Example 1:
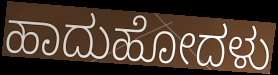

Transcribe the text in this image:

ಹಾದುಹೋದಳು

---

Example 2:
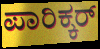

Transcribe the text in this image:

ಪಾರಿಕ್ಕರ್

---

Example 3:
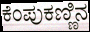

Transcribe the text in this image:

ಕೆಂಪುಕಣ್ಣಿನ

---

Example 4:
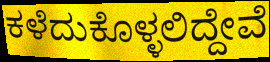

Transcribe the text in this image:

ಕಳೆದುಕೊಳ್ಳಲಿದ್ದೇವೆ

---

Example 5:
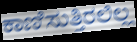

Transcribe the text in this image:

ಕಾಣಿಸುತ್ತಿರಲಿಲ್ಲ